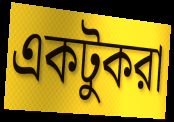
একটুকরা